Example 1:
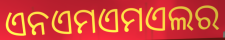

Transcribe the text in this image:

ଏନଏମଏମଏଲର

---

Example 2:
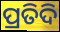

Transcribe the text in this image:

ପ୍ରତିଦି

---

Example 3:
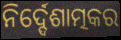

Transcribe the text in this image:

ନିର୍ଦ୍ଦେଶାତ୍ମକର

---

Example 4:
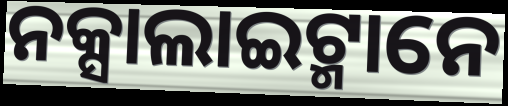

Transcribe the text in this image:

ନକ୍ସାଲାଇଟ୍ମାନେ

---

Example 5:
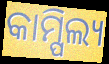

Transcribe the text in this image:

କାମ୍ପିଲ୍ୟ